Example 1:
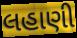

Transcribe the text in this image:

લહાણી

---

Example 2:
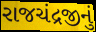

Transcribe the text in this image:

રાજચંદ્રજીનું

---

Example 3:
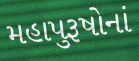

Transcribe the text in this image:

મહાપુરૂષોનાં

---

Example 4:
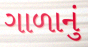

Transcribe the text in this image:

ગાળાનું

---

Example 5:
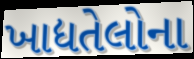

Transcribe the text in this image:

ખાદ્યતેલોના